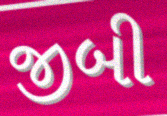
જીબી